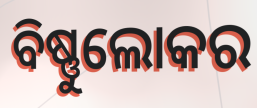
ବିଷ୍ଣୁଲୋକର